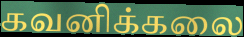
கவனிக்கலை